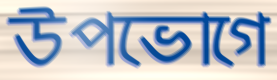
উপভোগে